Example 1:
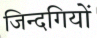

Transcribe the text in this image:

जिन्दगियों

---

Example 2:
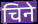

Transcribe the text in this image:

चिने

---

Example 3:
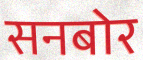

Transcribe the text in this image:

सनबोर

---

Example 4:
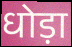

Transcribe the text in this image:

धोड़ा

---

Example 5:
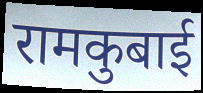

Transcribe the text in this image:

रामकुबाई